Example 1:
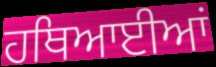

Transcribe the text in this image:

ਹਥਿਆਈਆਂ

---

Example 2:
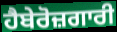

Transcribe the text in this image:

ਹੈਬੇਰੋਜ਼ਗਾਰੀ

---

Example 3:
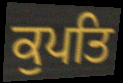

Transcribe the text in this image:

ਕੁਪਤਿ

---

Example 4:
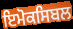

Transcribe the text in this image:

ਇਮੋਕਸਿਬਲ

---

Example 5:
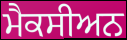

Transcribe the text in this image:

ਮੈਕਸੀਅਨ